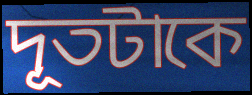
দূতটাকে